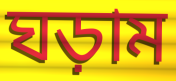
ঘড়াম